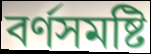
বর্ণসমষ্টি